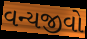
વન્યજીવો